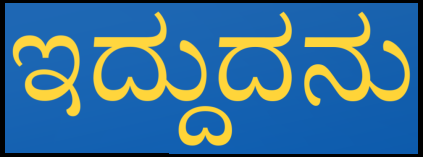
ಇದ್ದುದನು